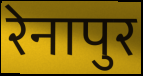
रेनापुर